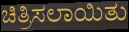
ಚಿತ್ರಿಸಲಾಯಿತು